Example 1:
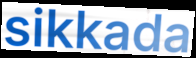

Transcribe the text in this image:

sikkada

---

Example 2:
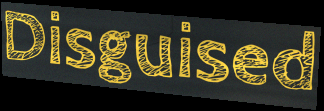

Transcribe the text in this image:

Disguised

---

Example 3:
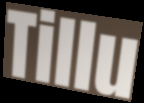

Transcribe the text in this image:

Tillu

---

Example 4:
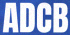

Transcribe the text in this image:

ADCB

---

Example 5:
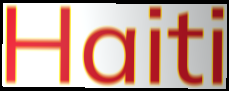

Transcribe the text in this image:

Haiti